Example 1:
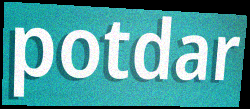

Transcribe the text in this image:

potdar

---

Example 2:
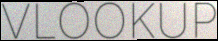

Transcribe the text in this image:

VLOOKUP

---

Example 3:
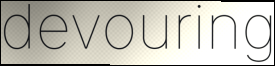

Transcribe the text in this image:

devouring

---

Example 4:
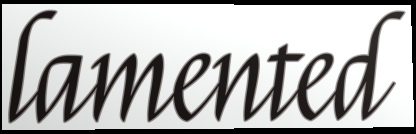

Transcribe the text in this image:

lamented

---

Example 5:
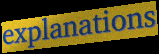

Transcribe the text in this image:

explanations